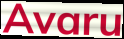
Avaru